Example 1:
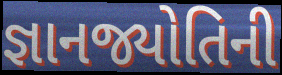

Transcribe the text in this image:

જ્ઞાનજ્યોતિની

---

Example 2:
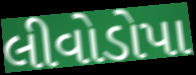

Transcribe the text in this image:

લીવોડોપા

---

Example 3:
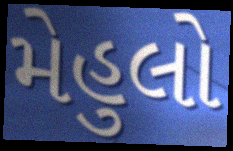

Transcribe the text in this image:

મેહુલો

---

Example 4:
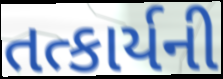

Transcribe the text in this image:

તત્કાર્યની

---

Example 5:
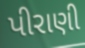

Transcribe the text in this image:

પીરાણી